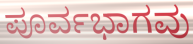
ಪೂರ್ವಭಾಗವು